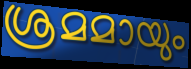
ശ്രമമായും